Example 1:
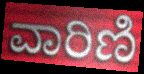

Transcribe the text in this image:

ವಾರಿಣಿ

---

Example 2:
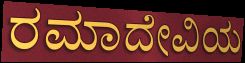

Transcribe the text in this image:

ರಮಾದೇವಿಯ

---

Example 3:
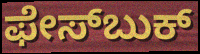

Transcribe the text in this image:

ಫೇಸ್‍ಬುಕ್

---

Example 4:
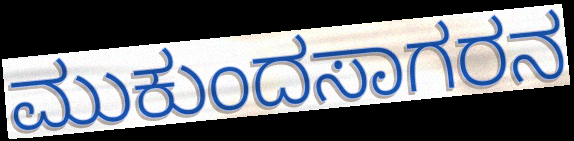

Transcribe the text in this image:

ಮುಕುಂದಸಾಗರನ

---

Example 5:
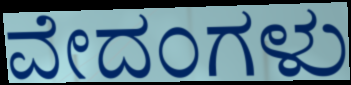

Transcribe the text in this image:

ವೇದಂಗಳು